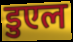
डुएल